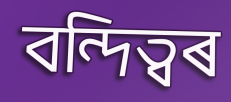
বন্দিত্বৰ